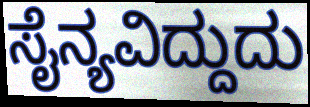
ಸೈನ್ಯವಿದ್ದುದು